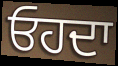
ਓਹਦਾ